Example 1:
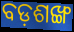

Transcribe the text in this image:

ବଡ଼ଶଙ୍ଖ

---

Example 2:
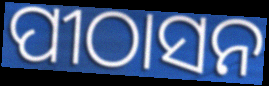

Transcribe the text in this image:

ପୀଠାସନ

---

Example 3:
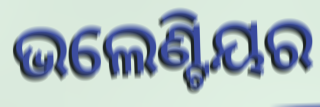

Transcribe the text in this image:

ଭଲେଣ୍ଟିୟର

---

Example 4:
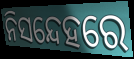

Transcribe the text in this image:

ନିସନ୍ଦେହରେ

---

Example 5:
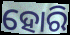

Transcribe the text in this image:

ହୋରି